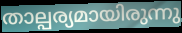
താല്പര്യമായിരുന്നു